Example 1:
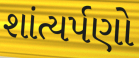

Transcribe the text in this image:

શાંત્યર્પણો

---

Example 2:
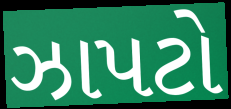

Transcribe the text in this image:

ઝાપટો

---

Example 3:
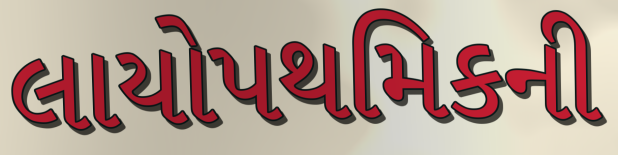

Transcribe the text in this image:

લાયોપથમિકની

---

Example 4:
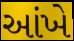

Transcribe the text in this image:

આંખે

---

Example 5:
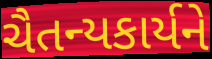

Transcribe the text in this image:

ચૈતન્યકાર્યને